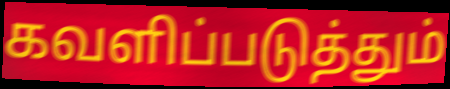
கவளிப்படுத்தும்